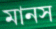
মানস